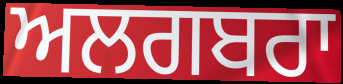
ਅਲਗਬਰਾ